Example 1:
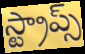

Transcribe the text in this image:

స్ట్రాప్స్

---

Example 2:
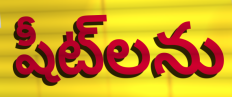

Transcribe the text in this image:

షీట్‌లను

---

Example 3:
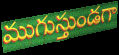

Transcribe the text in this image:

ముగుస్తుండగా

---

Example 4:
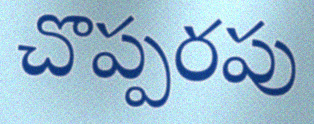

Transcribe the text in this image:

చొప్పరపు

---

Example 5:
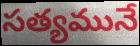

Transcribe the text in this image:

సత్యమునే